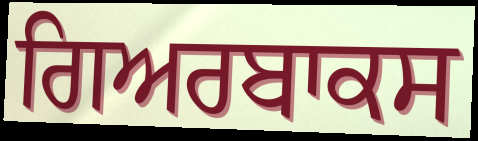
ਗਿਅਰਬਾਕਸ